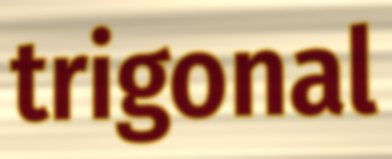
trigonal